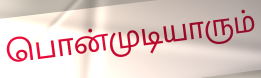
பொன்முடியாரும்